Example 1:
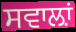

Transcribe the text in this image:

ਸਵਾਲ਼ਾਂ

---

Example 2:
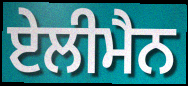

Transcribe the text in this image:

ਏਲੀਮੈਨ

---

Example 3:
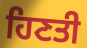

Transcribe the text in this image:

ਹਿਣਤੀ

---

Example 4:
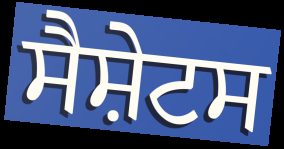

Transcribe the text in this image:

ਸੈਸ਼ੇਟਸ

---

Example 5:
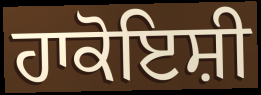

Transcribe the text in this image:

ਹਾਕੋਇਸ਼ੀ